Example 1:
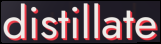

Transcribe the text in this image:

distillate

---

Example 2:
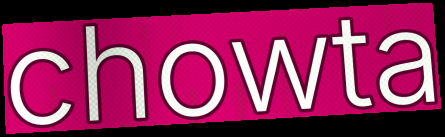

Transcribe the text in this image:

chowta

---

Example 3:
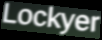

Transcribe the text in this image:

Lockyer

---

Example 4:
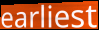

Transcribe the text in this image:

earliest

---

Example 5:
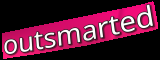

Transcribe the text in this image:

outsmarted